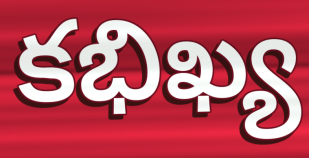
కభిఖ్య